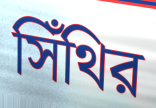
সিঁথির